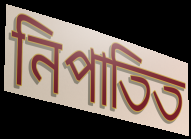
নিপাতিত